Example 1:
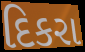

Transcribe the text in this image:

દિકરા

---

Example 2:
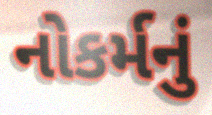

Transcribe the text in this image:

નોકર્મનું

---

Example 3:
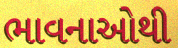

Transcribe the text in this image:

ભાવનાઓથી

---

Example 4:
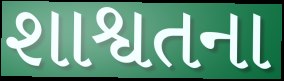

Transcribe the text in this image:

શાશ્વતના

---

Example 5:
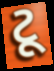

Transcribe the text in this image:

ટૂ